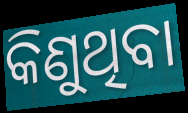
କିଣୁଥିବା